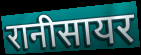
रानीसायर